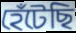
হেঁটেছি